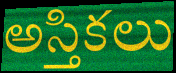
అస్తికలు